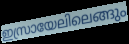
ഇസ്രായേലിലെങ്ങും